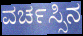
ವರ್ಚಸ್ಸಿನ